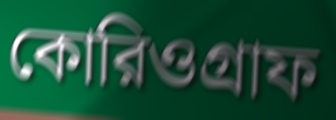
কোরিওগ্রাফ